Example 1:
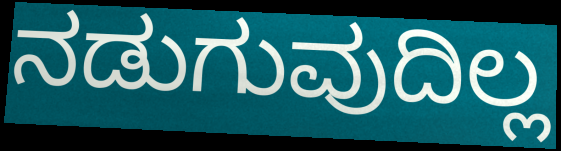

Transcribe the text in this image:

ನಡುಗುವುದಿಲ್ಲ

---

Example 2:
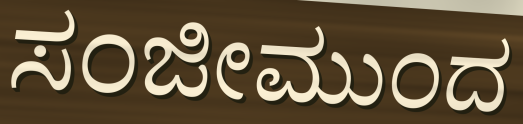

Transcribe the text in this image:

ಸಂಜೀಮುಂದ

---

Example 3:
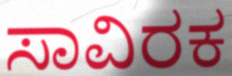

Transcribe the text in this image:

ಸಾವಿರಕ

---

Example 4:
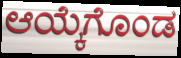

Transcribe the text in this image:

ಆಯ್ಕೆಗೊಂಡ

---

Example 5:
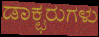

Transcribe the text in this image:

ಡಾಕ್ಟರುಗಳು